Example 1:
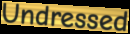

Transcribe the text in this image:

Undressed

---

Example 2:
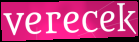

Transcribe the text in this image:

verecek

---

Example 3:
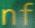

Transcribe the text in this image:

nf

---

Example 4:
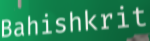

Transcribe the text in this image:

Bahishkrit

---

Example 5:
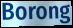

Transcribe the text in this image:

Borong